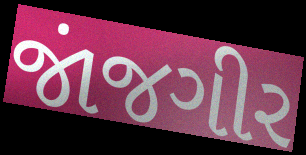
જાંજગીર